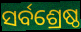
ସର୍ବଶ୍ରେଷ୍ଠ